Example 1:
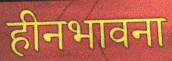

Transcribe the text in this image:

हीनभावना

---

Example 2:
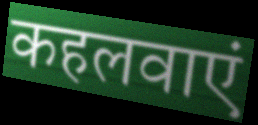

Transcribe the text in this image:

कहलवाएं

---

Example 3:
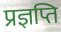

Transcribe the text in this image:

प्रज्ञप्ति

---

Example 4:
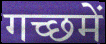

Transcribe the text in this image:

गच्छमें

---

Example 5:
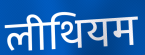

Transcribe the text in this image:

लीथियम